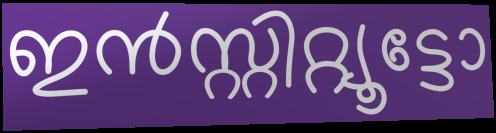
ഇൻസ്റ്റിറ്റ്യൂട്ടോ